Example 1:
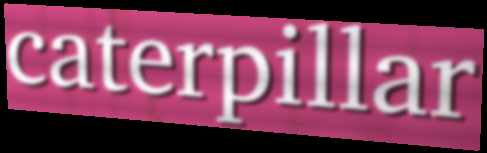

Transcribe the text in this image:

caterpillar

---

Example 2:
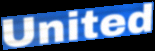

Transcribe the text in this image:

United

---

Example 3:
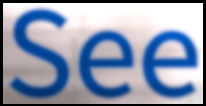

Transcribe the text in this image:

See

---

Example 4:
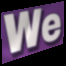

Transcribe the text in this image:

We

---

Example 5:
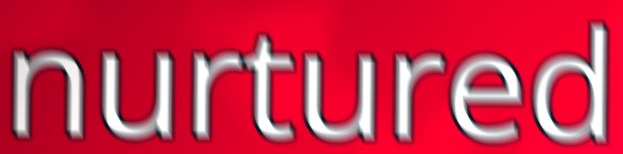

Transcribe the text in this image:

nurtured